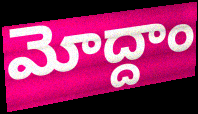
మోద్దాం